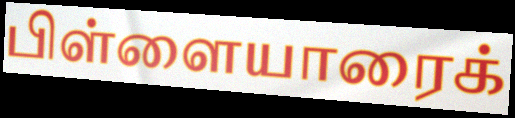
பிள்ளையாரைக்